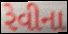
રેવીના